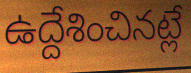
ఉద్దేశించినట్లే